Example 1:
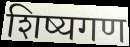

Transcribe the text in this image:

शिष्यगण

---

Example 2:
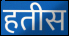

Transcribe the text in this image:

हतीस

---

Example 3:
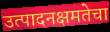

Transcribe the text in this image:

उत्पादनक्षमतेचा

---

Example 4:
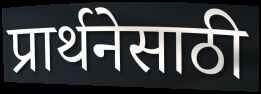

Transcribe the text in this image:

प्रार्थनेसाठी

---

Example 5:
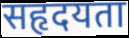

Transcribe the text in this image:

सहृदयता